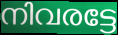
നിവരട്ടേ